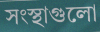
সংস্থাগুলো